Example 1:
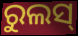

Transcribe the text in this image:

ରୁଲସ୍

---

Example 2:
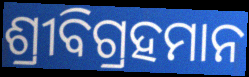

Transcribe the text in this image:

ଶ୍ରୀବିଗ୍ରହମାନ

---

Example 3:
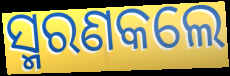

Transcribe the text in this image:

ସ୍ମରଣକଲେ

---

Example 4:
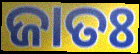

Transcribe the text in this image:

ଜାତଃ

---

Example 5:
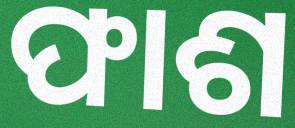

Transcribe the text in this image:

ଫାଶ